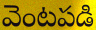
వెంటపడి